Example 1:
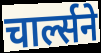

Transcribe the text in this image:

चार्ल्सने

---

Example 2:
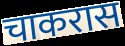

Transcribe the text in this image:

चाकरास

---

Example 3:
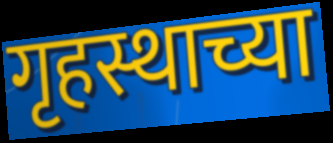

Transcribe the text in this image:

गृहस्थाच्या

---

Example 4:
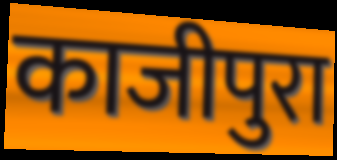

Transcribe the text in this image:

काजीपुरा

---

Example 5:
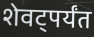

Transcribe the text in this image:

शेवट्पर्यंत